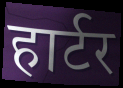
हार्टर